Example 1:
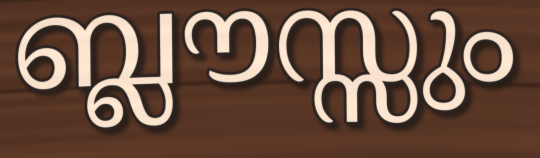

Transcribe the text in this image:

ബ്ലൗസ്സും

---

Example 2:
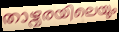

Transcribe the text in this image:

താഴ്വരയിലെയും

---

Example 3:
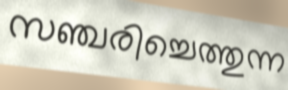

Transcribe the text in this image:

സഞ്ചരിച്ചെത്തുന്ന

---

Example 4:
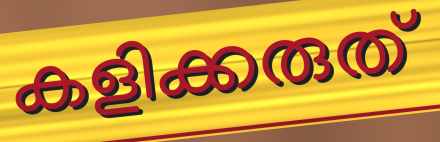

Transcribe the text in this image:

കളിക്കരുത്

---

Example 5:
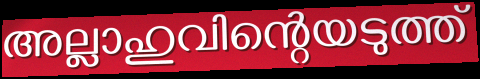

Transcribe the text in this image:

അല്ലാഹുവിന്റെയടുത്ത്